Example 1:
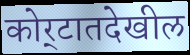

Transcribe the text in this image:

कोर्टातदेखील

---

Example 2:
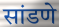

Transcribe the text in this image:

सांडणे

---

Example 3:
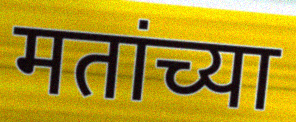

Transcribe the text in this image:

मतांच्या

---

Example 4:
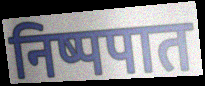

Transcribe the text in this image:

निष्पपात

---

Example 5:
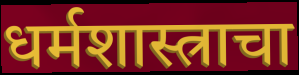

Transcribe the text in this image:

धर्मशास्त्राचा